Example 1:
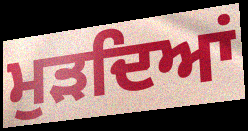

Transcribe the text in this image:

ਮੁੜਦਿਆਂ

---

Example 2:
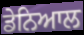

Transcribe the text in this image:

ਡੇਨਿਆਲ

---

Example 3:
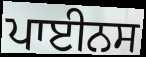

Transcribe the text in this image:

ਪਾਈਨਸ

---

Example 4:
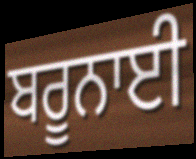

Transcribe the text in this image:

ਬਰੂਨਾਈ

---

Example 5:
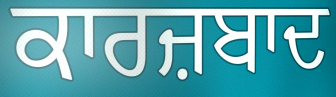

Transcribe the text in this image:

ਕਾਰਜ਼ਬਾਦ